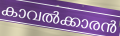
കാവൽക്കാരൻ